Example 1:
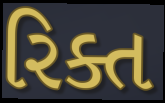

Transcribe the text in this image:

રિક્ત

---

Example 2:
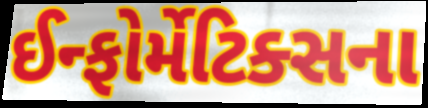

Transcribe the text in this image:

ઈન્ફોર્મેટિક્સના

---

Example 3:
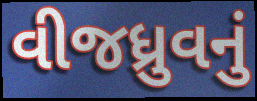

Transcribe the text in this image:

વીજધ્રુવનું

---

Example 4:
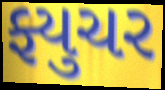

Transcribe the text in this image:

ફ્યુચર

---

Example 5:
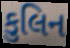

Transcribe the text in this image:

કુલિન